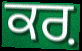
ਕਰ਼